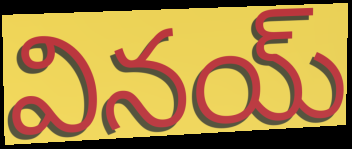
వినయ్